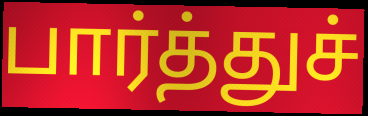
பார்த்துச்